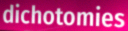
dichotomies